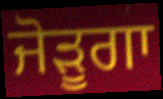
ਜੋੜੂਗਾ